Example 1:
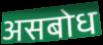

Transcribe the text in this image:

असबोध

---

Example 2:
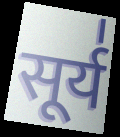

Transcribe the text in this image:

सूर्य॑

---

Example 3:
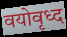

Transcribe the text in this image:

वयोवृध्द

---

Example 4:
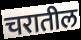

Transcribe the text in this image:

चरातील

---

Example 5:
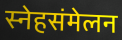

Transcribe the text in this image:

स्नेहसंमेलन